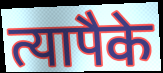
त्यापैके